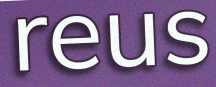
reus